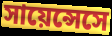
সায়েন্সেসে